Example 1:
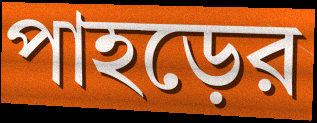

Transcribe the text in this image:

পাহড়ের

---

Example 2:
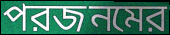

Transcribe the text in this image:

পরজনমের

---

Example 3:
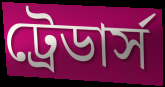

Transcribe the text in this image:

ট্রেডার্স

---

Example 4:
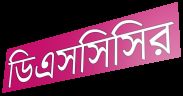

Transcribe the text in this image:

ডিএসসিসির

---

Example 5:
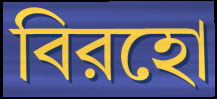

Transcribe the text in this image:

বিরহো